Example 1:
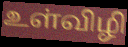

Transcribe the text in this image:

உள்விழி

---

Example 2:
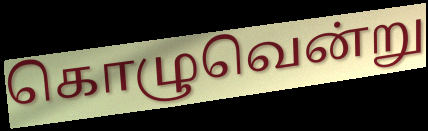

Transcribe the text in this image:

கொழுவென்று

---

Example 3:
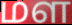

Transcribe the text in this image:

மள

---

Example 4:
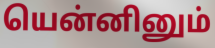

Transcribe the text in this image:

யென்னினும்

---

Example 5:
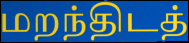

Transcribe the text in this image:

மறந்திடத்